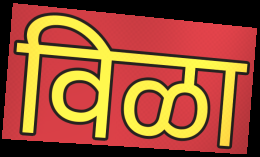
विळा